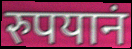
रुपयानं